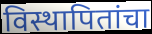
विस्थापितांचा